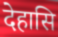
देहासि